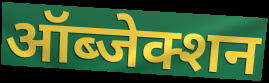
ऑब्जेक्शन